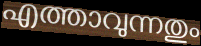
എത്താവുന്നതും